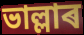
ভাল্লাৰ